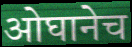
ओघानेच